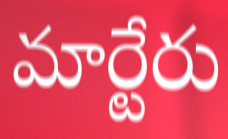
మార్టేరు